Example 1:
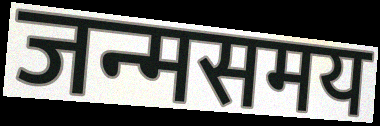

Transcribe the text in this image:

जन्मसमय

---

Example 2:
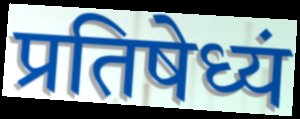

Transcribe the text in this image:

प्रतिषेध्यं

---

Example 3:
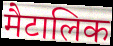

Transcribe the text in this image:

मैटालिक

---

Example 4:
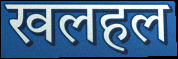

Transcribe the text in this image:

खलहल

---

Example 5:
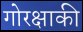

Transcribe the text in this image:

गोरक्षाकी